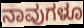
ನಾವುಗಳೂ